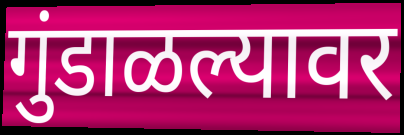
गुंडाळल्यावर